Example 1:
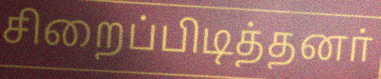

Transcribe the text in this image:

சிறைப்பிடித்தனர்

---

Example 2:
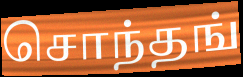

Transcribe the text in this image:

சொந்தங்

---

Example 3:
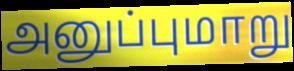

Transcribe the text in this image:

அனுப்புமாறு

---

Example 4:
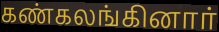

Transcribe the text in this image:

கண்கலங்கினார்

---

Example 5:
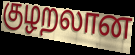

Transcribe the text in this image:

குழறலான